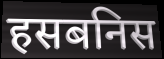
हसबनिस